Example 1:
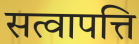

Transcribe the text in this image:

सत्वापत्ति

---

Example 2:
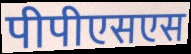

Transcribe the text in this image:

पीपीएसएस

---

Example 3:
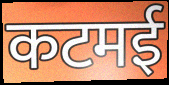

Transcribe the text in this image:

कटमई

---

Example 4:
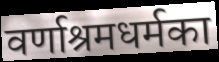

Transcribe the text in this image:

वर्णाश्रमधर्मका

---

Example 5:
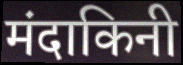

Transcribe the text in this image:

मंदाकिनी